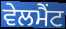
ਵੇਲਮੈਂਟ